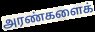
அரண்களைக்